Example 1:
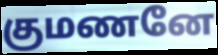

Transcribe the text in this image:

குமணனே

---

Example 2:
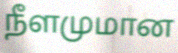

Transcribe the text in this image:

நீளமுமான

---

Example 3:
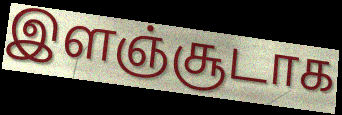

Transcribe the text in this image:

இளஞ்சூடாக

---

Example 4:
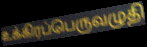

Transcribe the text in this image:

உக்கிரப்பெருவழுதி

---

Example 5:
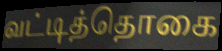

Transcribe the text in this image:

வட்டித்தொகை